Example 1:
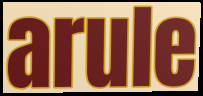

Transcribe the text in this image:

arule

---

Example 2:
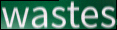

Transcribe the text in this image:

wastes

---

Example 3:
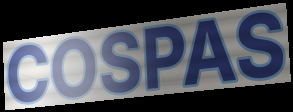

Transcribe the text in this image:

COSPAS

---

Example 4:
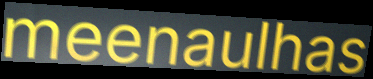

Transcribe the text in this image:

meenaulhas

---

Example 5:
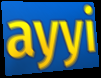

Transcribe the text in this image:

ayyi